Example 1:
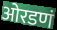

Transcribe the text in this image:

ओरडणं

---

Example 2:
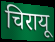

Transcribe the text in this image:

चिरायू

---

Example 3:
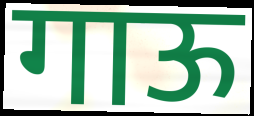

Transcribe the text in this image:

गाऊ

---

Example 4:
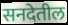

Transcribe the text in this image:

सनदेतील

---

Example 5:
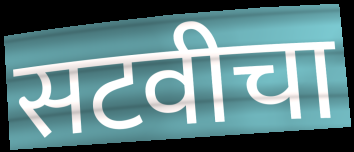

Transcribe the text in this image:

सटवीचा